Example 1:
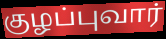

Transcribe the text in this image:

குழப்புவார்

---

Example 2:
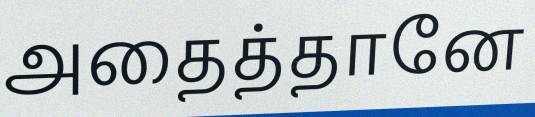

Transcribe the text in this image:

அதைத்தானே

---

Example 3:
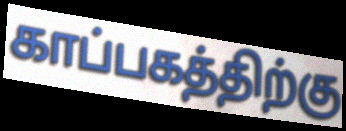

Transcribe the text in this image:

காப்பகத்திற்கு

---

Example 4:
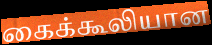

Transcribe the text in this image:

கைக்கூலியான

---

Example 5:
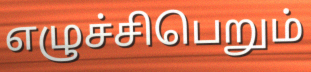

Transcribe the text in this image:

எழுச்சிபெறும்